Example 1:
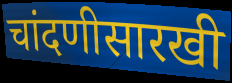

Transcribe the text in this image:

चांदणीसारखी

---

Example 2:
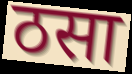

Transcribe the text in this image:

ठसा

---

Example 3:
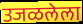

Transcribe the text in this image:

उजळलेला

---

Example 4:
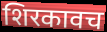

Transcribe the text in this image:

शिरकावच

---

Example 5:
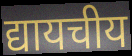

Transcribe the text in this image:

द्यायचीय